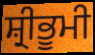
ਸ਼੍ਰੀਭੂਮੀ